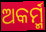
ଅକର୍ମ୍ମ